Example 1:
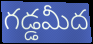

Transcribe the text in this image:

గడ్డమీద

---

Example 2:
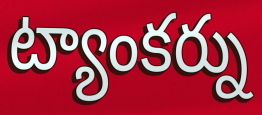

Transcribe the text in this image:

ట్యాంకర్ను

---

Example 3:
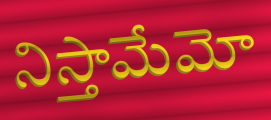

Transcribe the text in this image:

నిస్తామేమో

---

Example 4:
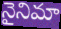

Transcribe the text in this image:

నైనిమా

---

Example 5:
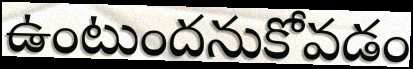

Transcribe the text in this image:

ఉంటుందనుకోవడం